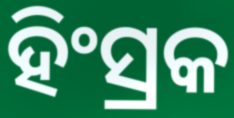
ହିଂସ୍ରକ